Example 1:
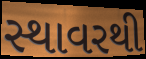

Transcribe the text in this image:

સ્થાવરથી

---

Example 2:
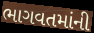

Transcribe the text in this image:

ભાગવતમાંની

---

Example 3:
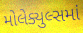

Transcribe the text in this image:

મોલેક્યુલ્સમાં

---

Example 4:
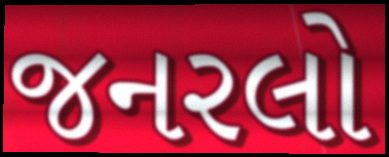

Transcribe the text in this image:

જનરલો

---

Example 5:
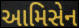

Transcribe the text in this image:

આમિસેન